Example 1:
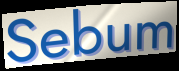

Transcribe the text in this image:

Sebum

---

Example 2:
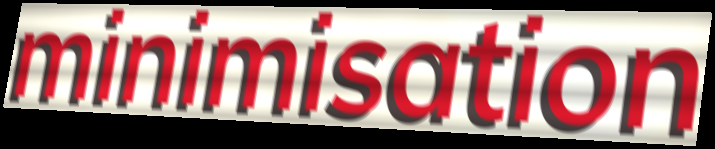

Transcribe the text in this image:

minimisation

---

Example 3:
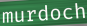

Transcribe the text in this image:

murdoch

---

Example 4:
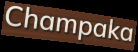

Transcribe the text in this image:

Champaka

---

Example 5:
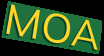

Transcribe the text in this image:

MOA